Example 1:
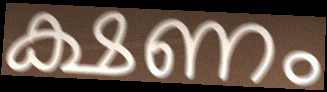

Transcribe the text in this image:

ക്ഷണം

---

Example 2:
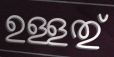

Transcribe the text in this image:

ഉള്ളതു്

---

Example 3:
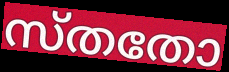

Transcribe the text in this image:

സ്തതോ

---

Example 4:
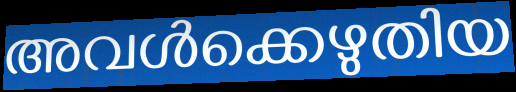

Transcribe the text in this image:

അവൾക്കെഴുതിയ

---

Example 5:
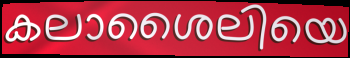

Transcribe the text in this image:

കലാശൈലിയെ